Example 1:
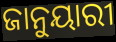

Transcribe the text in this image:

ଜାନୁୟାରୀ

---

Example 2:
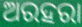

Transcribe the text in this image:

ଅରହରା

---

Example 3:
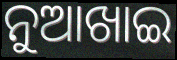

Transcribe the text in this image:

ନୁଆଖାଇ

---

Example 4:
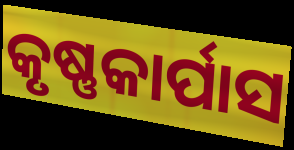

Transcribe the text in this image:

କୃଷ୍ଣକାର୍ପାସ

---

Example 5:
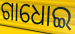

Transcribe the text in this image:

ଗାଧୋଇ